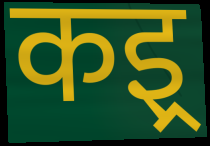
कइ्र